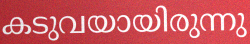
കടുവയായിരുന്നു